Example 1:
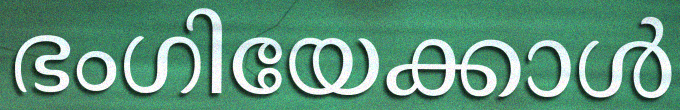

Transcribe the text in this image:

ഭംഗിയേക്കാൾ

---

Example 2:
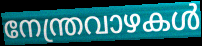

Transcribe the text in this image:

നേന്ത്രവാഴകൾ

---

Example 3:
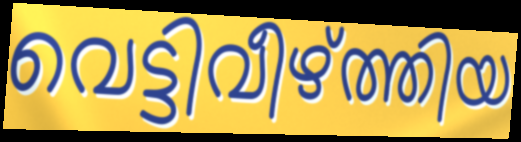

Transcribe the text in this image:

വെട്ടിവീഴ്ത്തിയ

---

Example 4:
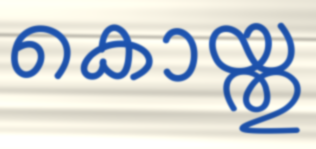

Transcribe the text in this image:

കൊയ്തു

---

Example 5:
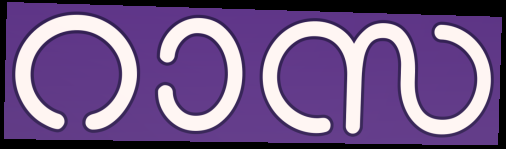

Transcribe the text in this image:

റാസ